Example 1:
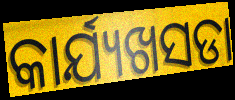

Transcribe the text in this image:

କାର୍ଯ୍ୟଖସଡା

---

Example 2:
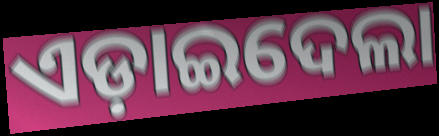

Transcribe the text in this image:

ଏଡ଼ାଇଦେଲା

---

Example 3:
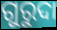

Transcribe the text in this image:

ଗୁରୁଦା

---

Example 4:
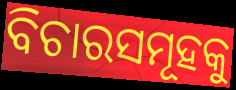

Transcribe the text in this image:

ବିଚାରସମୂହକୁ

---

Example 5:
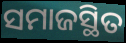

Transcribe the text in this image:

ସମାଜସ୍ଥିତ